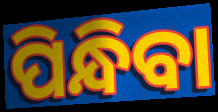
ପିନ୍ଧିବା